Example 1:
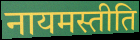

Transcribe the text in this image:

नायमस्तीति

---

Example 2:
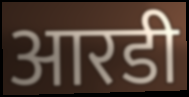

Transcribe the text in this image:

आरडी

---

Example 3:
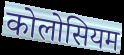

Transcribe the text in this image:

कोलोसियम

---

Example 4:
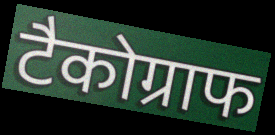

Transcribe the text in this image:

टैकोग्राफ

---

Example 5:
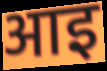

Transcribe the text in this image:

आइ